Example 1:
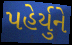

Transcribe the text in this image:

પહેર્યુને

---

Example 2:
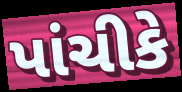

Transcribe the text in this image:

પાંચીકે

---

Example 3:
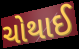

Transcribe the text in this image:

ચોથાઈ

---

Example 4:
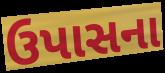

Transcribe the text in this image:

ઉપાસના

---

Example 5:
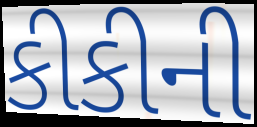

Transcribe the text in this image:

કીકીની